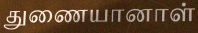
துணையானாள்